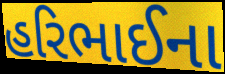
હરિભાઈના